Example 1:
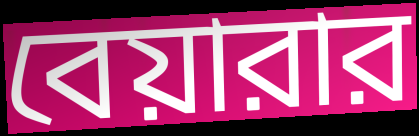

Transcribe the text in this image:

বেয়ারার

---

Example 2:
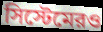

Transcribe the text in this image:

সিস্টেমেরও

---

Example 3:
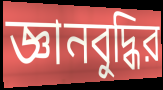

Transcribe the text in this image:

জ্ঞানবুদ্ধির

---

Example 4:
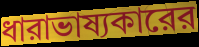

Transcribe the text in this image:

ধারাভাষ্যকারের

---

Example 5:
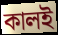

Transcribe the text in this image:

কালই